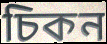
চিকন